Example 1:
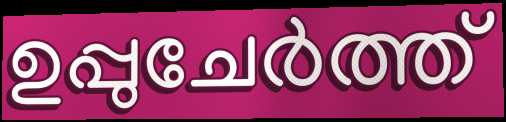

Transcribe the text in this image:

ഉപ്പുചേർത്ത്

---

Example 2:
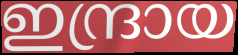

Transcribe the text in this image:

ഇന്ദ്രായ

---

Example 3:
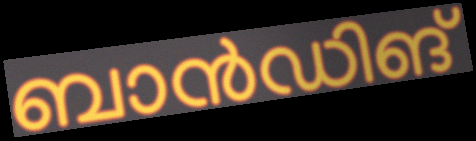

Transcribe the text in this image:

ബാൻഡിങ്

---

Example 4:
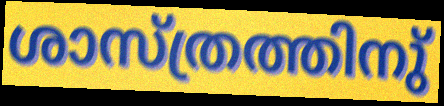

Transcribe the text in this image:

ശാസ്ത്രത്തിനു്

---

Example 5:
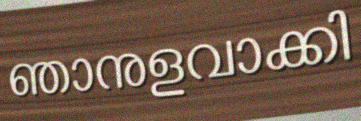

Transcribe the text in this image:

ഞാനുളവാക്കി